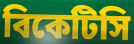
বিকেটিসি